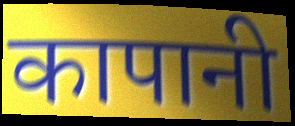
कापानी